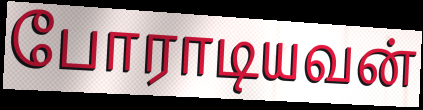
போராடியவன்